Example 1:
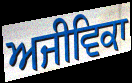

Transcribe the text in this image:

ਅਜੀਵਿਕਾ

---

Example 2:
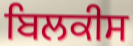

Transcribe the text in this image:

ਬਿਲਕੀਸ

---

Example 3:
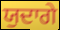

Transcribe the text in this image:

ਯੁਦਾਗੇ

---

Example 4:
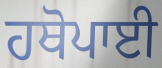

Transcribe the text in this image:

ਹਥੋਪਾਈ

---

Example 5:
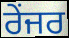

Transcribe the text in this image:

ਰੇਂਜਰ